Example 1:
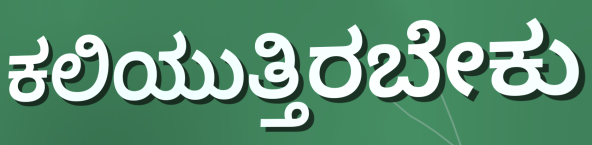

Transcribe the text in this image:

ಕಲಿಯುತ್ತಿರಬೇಕು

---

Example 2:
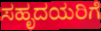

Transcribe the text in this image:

ಸಹೃದಯರಿಗೆ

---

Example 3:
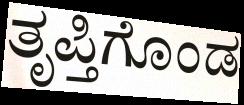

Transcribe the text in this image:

ತೃಪ್ತಿಗೊಂಡ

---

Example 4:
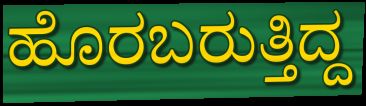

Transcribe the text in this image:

ಹೊರಬರುತ್ತಿದ್ದ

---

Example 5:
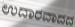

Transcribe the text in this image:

ಉದಾರವಾದದ